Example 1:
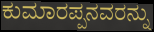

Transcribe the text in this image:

ಕುಮಾರಪ್ಪನವರನ್ನು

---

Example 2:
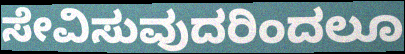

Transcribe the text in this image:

ಸೇವಿಸುವುದರಿಂದಲೂ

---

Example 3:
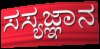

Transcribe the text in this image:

ಸಸ್ಯಜ್ಞಾನ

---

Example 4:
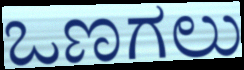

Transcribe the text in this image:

ಒಣಗಲು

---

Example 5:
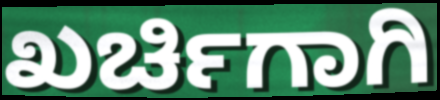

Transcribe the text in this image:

ಖರ್ಚಿಗಾಗಿ